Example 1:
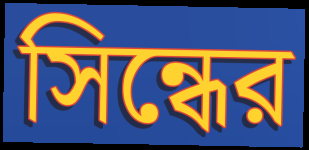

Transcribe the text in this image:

সিন্ধের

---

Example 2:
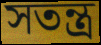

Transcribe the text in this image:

সতন্ত্র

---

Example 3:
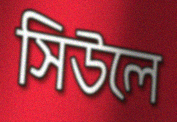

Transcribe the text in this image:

সিউলে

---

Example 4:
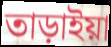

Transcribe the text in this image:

তাড়াইয়া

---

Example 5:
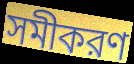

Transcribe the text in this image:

সমীকরণ